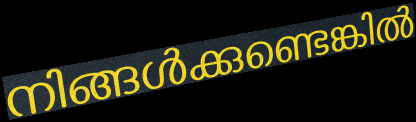
നിങ്ങൾക്കുണ്ടെങ്കിൽ